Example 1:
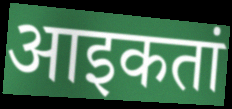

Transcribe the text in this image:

आइकतां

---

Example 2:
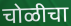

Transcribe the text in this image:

चोळीचा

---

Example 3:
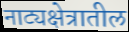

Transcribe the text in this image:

नाट्यक्षेत्रातील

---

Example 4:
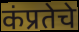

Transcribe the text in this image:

कंप्रतेचे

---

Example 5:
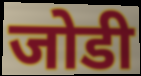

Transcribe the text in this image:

जोडी